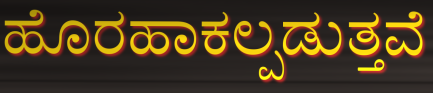
ಹೊರಹಾಕಲ್ಪಡುತ್ತವೆ